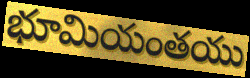
భూమియంతయు